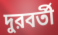
দুরবর্তী